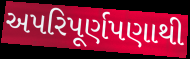
અપરિપૂર્ણપણાથી